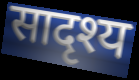
सादृश्य